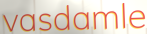
vasdamle